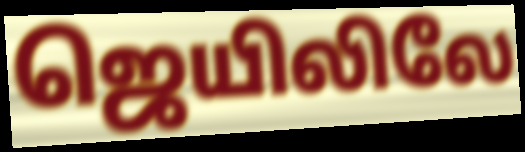
ஜெயிலிலே